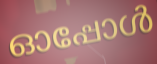
ഓപ്പോൾ